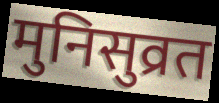
मुनिसुव्रत